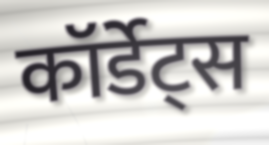
कॉर्डेट्स